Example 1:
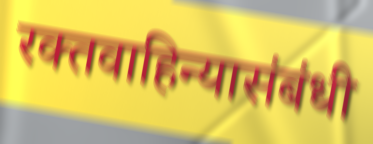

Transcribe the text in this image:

रक्तवाहिन्यासंबंधी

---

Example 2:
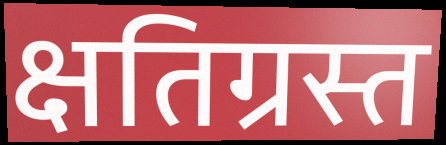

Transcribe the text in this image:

क्षतिग्रस्त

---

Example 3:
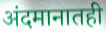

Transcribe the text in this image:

अंदमानातही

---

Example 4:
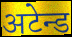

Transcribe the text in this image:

अटेन्ड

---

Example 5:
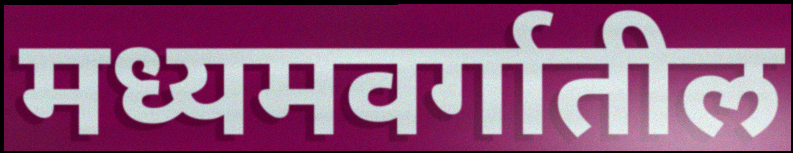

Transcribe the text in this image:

मध्यमवर्गातील